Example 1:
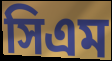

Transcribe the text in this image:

সিএম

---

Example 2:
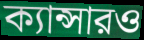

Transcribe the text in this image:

ক্যান্সারও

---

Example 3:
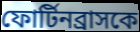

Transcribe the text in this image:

ফোর্টিনব্রাসকে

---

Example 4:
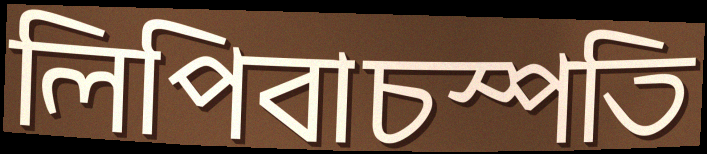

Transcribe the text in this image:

লিপিবাচস্পতি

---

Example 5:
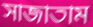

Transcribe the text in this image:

সাজাতাম